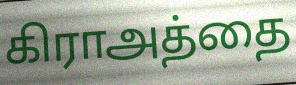
கிராஅத்தை